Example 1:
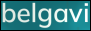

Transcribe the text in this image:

belgavi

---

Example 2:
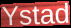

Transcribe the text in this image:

Ystad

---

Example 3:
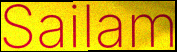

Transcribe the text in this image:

Sailam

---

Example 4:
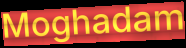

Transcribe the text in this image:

Moghadam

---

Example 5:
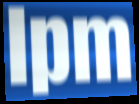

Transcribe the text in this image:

lpm